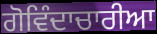
ਗੋਵਿੰਦਾਚਾਰੀਆ